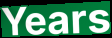
Years